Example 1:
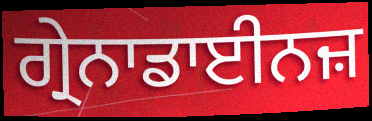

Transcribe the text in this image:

ਗ੍ਰੇਨਾਡਾਈਨਜ਼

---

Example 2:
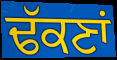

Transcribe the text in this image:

ਢੱਕਣਾਂ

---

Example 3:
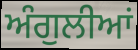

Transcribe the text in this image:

ਅੰਗੁਲੀਆਂ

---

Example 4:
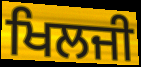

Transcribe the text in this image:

ਖਿਲਜੀ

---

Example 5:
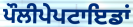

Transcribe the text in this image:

ਪੌਲੀਪੇਪਟਾਇਡਾਂ